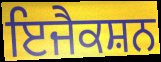
ਇਜੈਕਸ਼ਨ